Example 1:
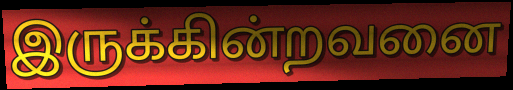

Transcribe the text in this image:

இருக்கின்றவனை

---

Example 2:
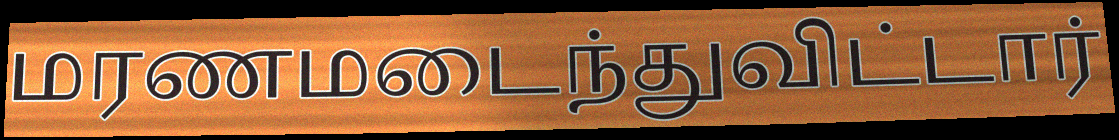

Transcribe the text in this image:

மரணமடைந்துவிட்டார்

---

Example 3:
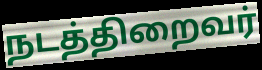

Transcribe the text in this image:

நடத்திறைவர்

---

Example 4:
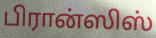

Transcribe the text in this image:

பிரான்ஸிஸ்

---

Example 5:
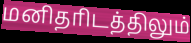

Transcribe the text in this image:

மனிதரிடத்திலும்